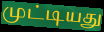
முட்டியது